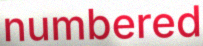
numbered